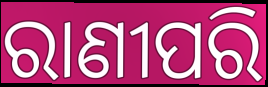
ରାଣୀପରି